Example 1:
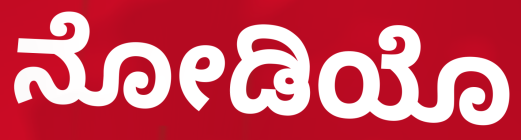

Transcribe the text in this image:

ನೋಡಿಯೊ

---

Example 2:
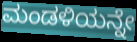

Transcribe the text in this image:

ಮಂಡಳಿಯನ್ನೇ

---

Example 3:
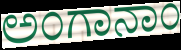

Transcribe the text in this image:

ಅಂಗಾನಾಂ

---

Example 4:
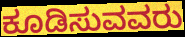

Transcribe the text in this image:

ಕೂಡಿಸುವವರು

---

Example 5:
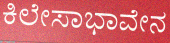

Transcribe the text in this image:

ಕಿಲೇಸಾಭಾವೇನ